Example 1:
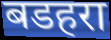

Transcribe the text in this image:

बडहरा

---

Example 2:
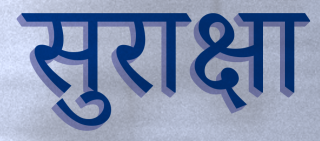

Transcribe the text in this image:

सुराक्षा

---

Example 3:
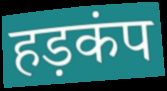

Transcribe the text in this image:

हड़कंप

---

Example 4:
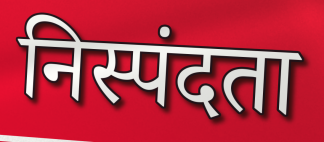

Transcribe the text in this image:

निस्पंदता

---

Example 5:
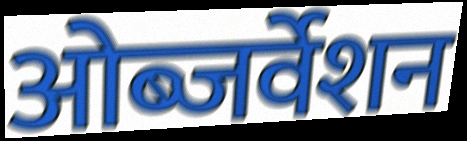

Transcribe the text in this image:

ओब्ज़र्वेशन